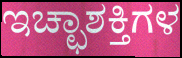
ಇಚ್ಛಾಶಕ್ತಿಗಳ